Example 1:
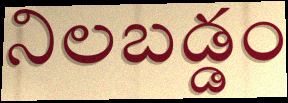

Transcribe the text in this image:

నిలబడ్డం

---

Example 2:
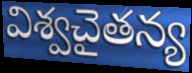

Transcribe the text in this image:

విశ్వచైతన్య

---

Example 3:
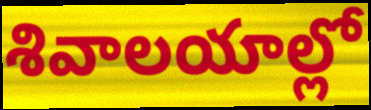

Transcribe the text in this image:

శివాలయాల్లో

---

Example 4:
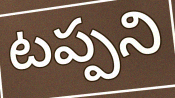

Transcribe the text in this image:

టప్పని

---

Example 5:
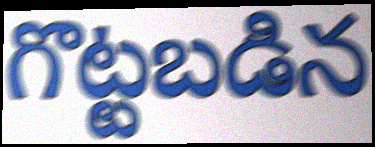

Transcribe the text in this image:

గొట్టబడిన